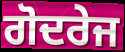
ਗੋਦਰੇਜ